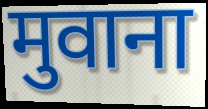
मुवाना